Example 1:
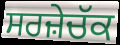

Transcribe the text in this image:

ਸਰਜ਼ੇਚੱਕ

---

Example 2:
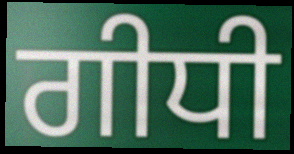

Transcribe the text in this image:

ਗੀਧੀ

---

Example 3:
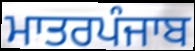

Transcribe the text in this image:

ਮਾਤਰਪੰਜਾਬ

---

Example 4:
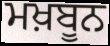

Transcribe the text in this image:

ਮਖ਼ਬੂਨ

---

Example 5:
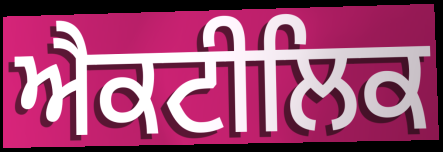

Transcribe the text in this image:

ਐਕਟੀਲਿਕ